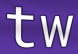
tw